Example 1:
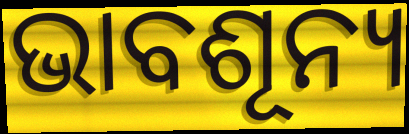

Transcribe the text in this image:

ଭାବଶୂନ୍ୟ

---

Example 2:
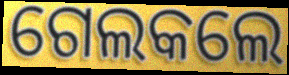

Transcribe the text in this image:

ଗେଲକଲେ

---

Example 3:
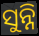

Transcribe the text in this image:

ସୁନ୍ନି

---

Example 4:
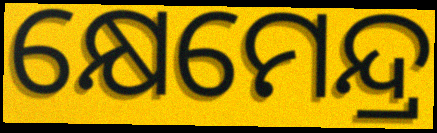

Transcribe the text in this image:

କ୍ଷେମେନ୍ଦ୍ର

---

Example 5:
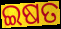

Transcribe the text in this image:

ଇଷତ